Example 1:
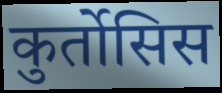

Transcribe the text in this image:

कुर्तोसिस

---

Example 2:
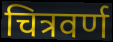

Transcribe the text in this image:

चित्रवर्ण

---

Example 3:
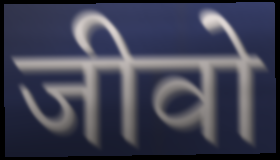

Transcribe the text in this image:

जीवो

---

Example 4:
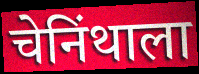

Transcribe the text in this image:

चेनिंथाला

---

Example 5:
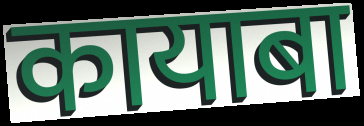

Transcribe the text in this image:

कायाबा